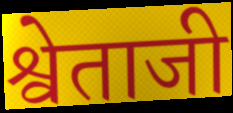
श्वेताजी